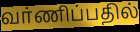
வர்ணிப்பதில்